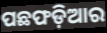
ପଛଫଡ଼ିଆର